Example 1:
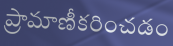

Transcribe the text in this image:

ప్రామాణీకరించడం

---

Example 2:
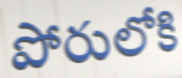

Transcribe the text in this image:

పోరులోకి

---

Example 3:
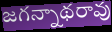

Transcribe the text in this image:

జగన్నాథరావు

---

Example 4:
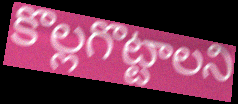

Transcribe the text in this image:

కొల్లగొట్టాలని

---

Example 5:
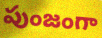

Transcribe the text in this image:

పుంజంగా